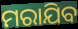
ମରାଯିବ